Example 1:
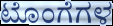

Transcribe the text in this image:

ಟೊಂಗೆಗಳ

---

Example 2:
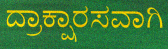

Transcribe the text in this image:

ದ್ರಾಕ್ಷಾರಸವಾಗಿ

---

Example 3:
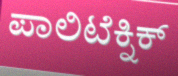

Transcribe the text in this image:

ಪಾಲಿಟೆಕ್ನಿಕ್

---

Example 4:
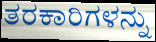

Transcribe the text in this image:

ತರಕಾರಿಗಳನ್ನು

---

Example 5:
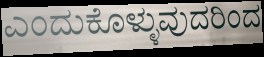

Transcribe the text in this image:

ಎಂದುಕೊಳ್ಳುವುದರಿಂದ